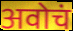
अवोचं